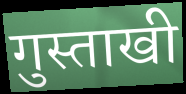
गुस्ताखी